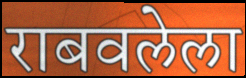
राबवलेला